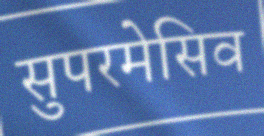
सुपरमेसिव